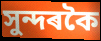
সুন্দৰকৈ